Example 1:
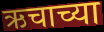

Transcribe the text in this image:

ऋचाच्या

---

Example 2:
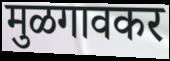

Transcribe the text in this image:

मुळगावकर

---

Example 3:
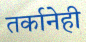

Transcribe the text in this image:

तर्कानेही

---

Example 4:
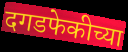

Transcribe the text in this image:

दगडफेकीच्या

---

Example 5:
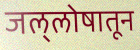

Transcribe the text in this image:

जल्लोषातून